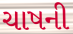
ચાષની